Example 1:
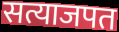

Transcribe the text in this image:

सत्याजपत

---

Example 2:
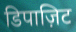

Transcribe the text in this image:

डिपाज़िट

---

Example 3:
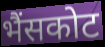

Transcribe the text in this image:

भैंसकोट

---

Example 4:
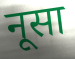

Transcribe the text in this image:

नूसा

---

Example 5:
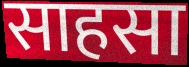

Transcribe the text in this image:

साहसा